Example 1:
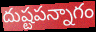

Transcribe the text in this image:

దుష్టపన్నాగం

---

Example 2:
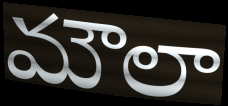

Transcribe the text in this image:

మౌలా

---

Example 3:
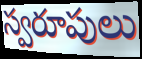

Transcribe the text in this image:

స్వరూపులు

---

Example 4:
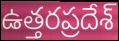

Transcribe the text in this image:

ఉత్తరప్రదేశ్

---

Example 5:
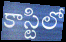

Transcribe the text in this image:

కాస్టిలో